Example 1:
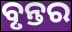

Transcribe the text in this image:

ବୃନ୍ତର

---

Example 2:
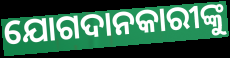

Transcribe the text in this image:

ଯୋଗଦାନକାରୀଙ୍କୁ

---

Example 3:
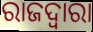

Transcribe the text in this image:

ରାଜଦ୍ୱାରା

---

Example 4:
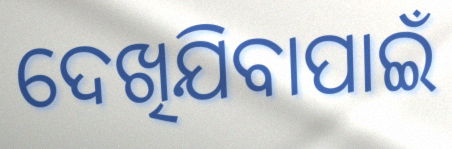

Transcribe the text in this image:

ଦେଖିଯିବାପାଇଁ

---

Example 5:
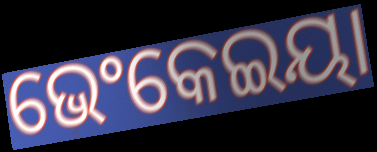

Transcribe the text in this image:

ଭେଂକେଇୟା